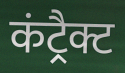
कंट्रैक्ट